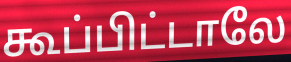
கூப்பிட்டாலே